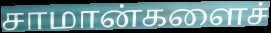
சாமான்களைச்